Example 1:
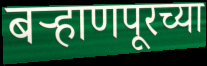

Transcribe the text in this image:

बऱ्हाणपूरच्या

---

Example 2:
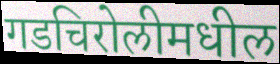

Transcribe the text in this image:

गडचिरोलीमधील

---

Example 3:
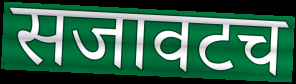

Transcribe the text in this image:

सजावटच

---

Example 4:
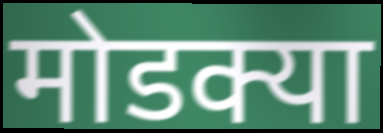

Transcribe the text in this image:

मोडक्या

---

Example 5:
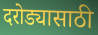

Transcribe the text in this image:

दरोड्यासाठी